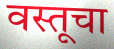
वस्तूचा